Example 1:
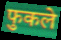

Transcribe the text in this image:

फुकले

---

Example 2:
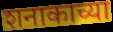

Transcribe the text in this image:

शनाकाच्या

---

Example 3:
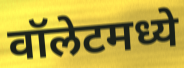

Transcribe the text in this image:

वॉलेटमध्ये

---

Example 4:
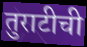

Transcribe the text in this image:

तुराटीची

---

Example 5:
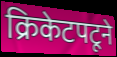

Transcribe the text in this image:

क्रिकेटपटूने